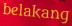
belakang